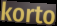
korto